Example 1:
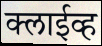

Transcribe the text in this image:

क्लाईव्ह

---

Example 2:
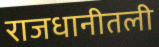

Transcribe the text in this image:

राजधानीतली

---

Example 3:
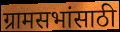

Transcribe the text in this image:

ग्रामसभांसाठी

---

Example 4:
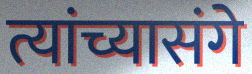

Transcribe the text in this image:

त्यांच्यासंगे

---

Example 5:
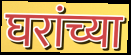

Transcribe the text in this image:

घरांच्या